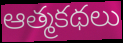
ఆత్మకథలు